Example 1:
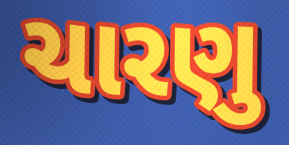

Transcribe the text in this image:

ચારણુ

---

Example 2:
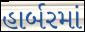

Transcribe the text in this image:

હાર્બરમાં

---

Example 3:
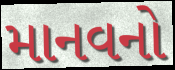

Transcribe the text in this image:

માનવનો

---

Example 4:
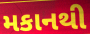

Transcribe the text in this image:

મકાનથી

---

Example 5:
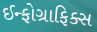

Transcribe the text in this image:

ઈન્ફોગ્રાફિક્સ